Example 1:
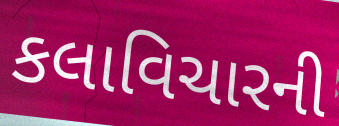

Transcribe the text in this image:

કલાવિચારની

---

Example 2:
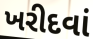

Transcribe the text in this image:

ખરીદવાં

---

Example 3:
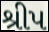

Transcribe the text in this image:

શ્રીપ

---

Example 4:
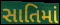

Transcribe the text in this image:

સાતિમાં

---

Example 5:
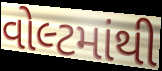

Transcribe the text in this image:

વોલ્ટમાંથી